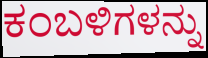
ಕಂಬಳಿಗಳನ್ನು